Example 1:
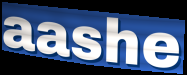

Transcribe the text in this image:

aashe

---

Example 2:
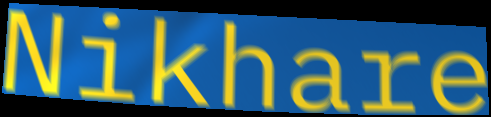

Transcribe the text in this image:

Nikhare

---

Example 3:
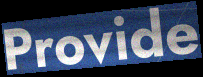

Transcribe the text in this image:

Provide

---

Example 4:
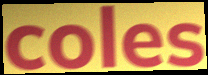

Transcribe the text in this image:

coles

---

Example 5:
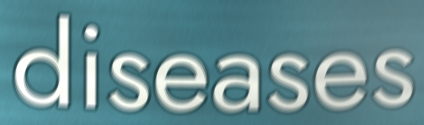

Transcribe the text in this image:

diseases